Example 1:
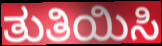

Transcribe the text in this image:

ತುತಿಯಿಸಿ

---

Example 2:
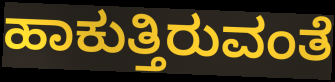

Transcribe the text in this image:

ಹಾಕುತ್ತಿರುವಂತೆ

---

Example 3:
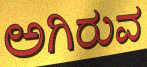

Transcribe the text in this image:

ಅಗಿರುವ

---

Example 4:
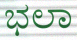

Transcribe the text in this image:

ಭಲಾ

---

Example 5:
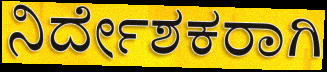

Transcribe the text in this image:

ನಿರ್ದೇಶಕರಾಗಿ